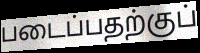
படைப்பதற்குப்